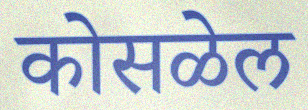
कोसळेल